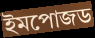
ইমপোজড